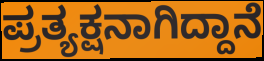
ಪ್ರತ್ಯಕ್ಷನಾಗಿದ್ದಾನೆ